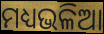
ମଧ୍ୟଭଳିଆ